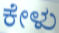
ಕೇಳು